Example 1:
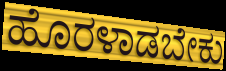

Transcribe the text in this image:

ಹೊರಳಾಡಬೇಕು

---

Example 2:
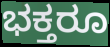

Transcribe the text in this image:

ಭಕ್ತರೂ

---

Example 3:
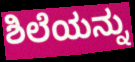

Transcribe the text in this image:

ಶಿಲೆಯನ್ನು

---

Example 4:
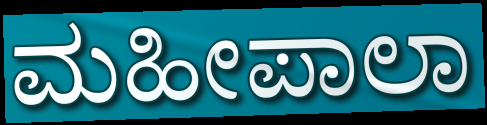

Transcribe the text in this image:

ಮಹೀಪಾಲಾ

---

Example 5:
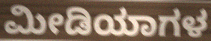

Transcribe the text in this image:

ಮೀಡಿಯಾಗಳ